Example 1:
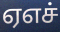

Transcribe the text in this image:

ஏஎச்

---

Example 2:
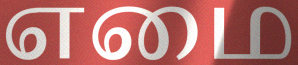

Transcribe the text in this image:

எமை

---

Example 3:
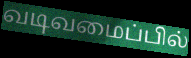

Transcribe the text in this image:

வடிவமைப்பில்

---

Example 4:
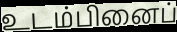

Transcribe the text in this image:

உடம்பினைப்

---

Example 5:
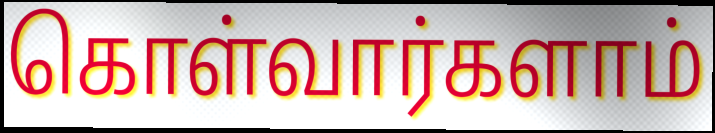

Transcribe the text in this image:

கொள்வார்களாம்